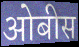
ओबीस